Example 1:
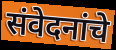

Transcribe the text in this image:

संवेदनांचे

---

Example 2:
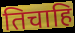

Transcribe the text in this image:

तिचाहि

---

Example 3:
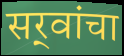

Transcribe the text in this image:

सर्वांचा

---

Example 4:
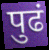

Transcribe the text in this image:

पुढं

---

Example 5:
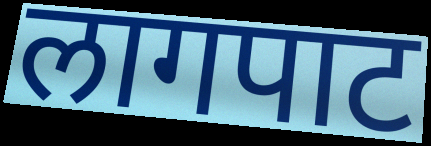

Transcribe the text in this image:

लागपाट